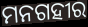
ମନଗହୀର